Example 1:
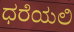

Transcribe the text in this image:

ಧರೆಯಲಿ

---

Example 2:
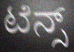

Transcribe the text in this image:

ಟೆನ್ಸ್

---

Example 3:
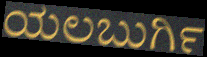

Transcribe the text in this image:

ಯಲಬುರ್ಗಿ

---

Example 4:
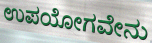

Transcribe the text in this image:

ಉಪಯೋಗವೇನು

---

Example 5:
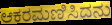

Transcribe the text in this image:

ಆಕರಮಣಿಸಿದನು